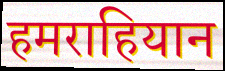
हमराहियान